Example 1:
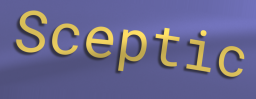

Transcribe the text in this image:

Sceptic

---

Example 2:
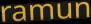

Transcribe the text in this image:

ramun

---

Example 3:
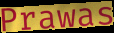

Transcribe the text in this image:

Prawas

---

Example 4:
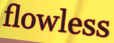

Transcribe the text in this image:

flowless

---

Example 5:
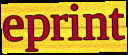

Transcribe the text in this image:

eprint